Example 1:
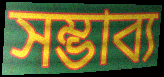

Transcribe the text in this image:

সম্ভাব্য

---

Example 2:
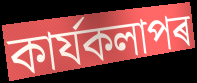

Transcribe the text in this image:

কাৰ্যকলাপৰ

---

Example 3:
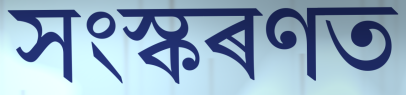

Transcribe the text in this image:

সংস্কৰণত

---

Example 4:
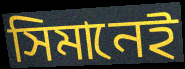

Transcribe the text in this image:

সিমানেই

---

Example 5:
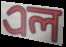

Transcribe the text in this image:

এল